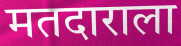
मतदाराला